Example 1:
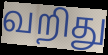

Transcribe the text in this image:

வறிது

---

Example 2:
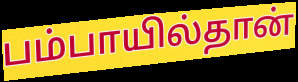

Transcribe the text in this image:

பம்பாயில்தான்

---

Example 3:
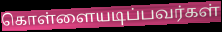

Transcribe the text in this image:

கொள்ளையடிப்பவர்கள்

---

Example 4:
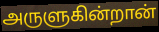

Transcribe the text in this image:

அருளுகின்றான்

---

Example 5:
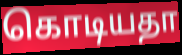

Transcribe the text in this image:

கொடியதா